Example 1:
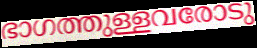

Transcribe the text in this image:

ഭാഗത്തുള്ളവരോടു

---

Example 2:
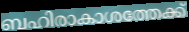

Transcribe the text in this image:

ബഹിരാകാശത്തേക്ക്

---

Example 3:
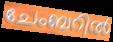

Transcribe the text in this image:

ചേംബറിൽ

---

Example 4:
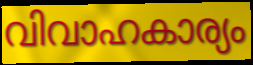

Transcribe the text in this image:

വിവാഹകാര്യം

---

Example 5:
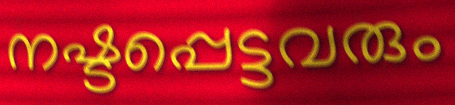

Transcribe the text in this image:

നഷ്ടപ്പെട്ടവരും